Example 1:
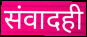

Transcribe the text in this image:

संवादही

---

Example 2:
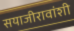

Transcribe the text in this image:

सयाजीरावांशी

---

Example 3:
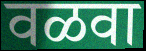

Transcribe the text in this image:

वळवा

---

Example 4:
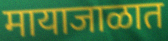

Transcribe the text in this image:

मायाजाळात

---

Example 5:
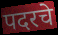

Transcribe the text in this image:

पदरचे